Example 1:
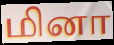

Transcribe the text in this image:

மினா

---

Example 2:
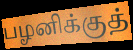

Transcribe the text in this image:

பழனிக்குத்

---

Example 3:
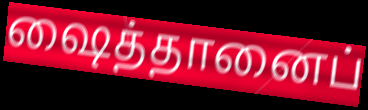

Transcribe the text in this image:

ஷைத்தானைப்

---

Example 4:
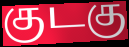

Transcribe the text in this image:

குடகு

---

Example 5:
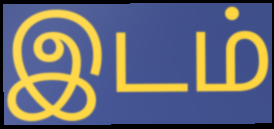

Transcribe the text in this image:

இடம்